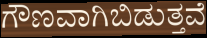
ಗೌಣವಾಗಿಬಿಡುತ್ತವೆ